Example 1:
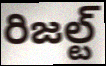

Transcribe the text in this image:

రిజల్ట్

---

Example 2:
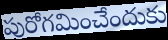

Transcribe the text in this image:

పురోగమించేందుకు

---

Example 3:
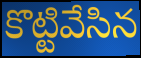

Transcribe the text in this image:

కొట్టివేసిన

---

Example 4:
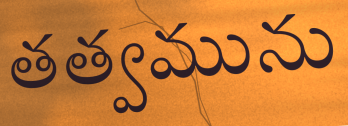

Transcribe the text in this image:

తత్వమును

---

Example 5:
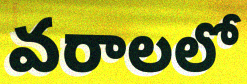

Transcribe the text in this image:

వరాలలో